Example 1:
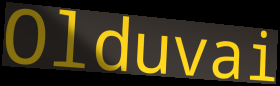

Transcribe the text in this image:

Olduvai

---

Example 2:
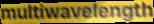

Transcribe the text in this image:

multiwavelength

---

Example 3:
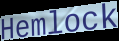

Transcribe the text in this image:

Hemlock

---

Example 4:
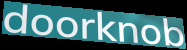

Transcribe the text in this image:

doorknob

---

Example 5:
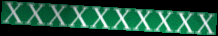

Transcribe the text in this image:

XXXXXXXXXX